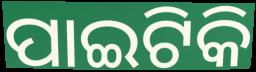
ପାଇଟିକି